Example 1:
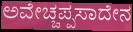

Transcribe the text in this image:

ಅವೇಚ್ಚಪ್ಪಸಾದೇನ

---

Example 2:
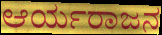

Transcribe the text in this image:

ಆರ್ಯರಾಜನ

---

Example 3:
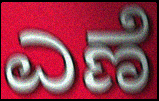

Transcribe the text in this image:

ಎಣೆ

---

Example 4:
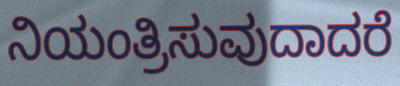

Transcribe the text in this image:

ನಿಯಂತ್ರಿಸುವುದಾದರೆ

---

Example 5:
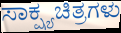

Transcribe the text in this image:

ಸಾಕ್ಷ್ಯಚಿತ್ರಗಳು